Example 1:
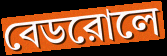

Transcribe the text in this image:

বেডরোলে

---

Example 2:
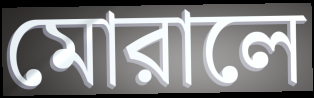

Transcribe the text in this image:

মোরালে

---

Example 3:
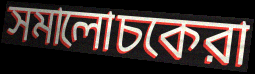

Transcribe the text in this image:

সমালোচকেরা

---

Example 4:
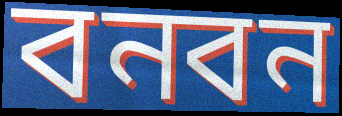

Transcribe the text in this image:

বনবন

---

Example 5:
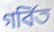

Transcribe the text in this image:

গর্বিত